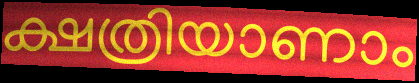
ക്ഷത്രിയാണാം